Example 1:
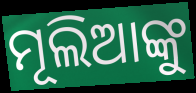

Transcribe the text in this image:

ମୂଲିଆଙ୍କୁ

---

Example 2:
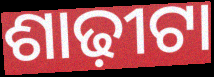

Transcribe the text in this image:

ଶାଢ଼ୀଟା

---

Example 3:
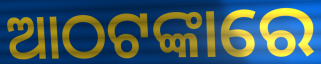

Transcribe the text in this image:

ଆଠଟଙ୍କାରେ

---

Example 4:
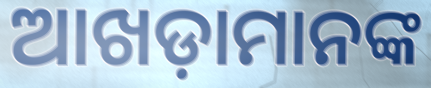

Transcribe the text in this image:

ଆଖଡ଼ାମାନଙ୍କ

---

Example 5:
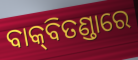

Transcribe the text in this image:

ବାକ୍‌ବିତଣ୍ଡାରେ